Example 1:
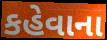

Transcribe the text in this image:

કહેવાના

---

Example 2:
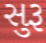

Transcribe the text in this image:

સુરૂ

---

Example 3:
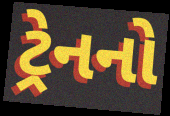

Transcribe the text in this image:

ટ્રેનનો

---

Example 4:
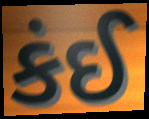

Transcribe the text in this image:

કંઈ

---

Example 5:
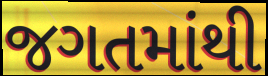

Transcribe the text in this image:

જગતમાંથી